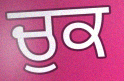
ਚੁਕ